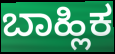
ಬಾಹ್ಲಿಕ